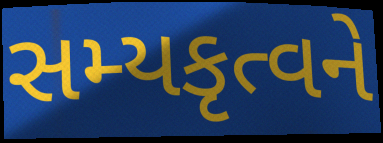
સમ્યકૃત્વને